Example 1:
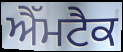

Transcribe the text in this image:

ਐੱਮਟੈਕ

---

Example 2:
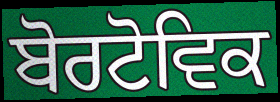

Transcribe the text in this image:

ਬੋਰਟੋਵਿਕ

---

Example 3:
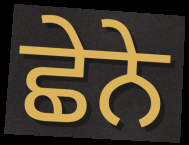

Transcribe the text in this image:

ਛੇਨੇ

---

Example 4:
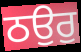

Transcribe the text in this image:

ਠਉਰੁ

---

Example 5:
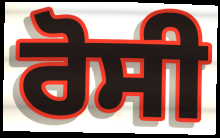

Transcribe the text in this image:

ਰੋਸੀ